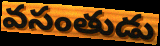
వసంతుడు